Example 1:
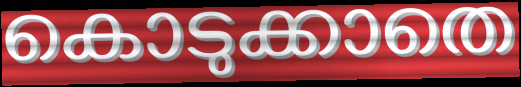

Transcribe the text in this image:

കൊടുക്കാതെ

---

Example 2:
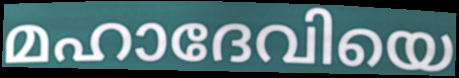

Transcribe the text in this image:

മഹാദേവിയെ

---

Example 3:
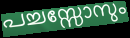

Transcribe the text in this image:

പച്ചസ്സോസും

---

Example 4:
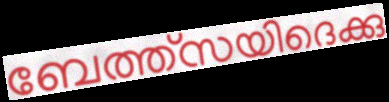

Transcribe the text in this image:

ബേത്ത്സയിദെക്കു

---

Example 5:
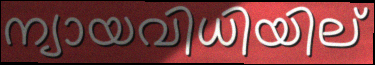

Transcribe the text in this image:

ന്യായവിധിയില്